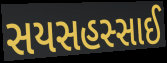
સયસહસ્સાઈ